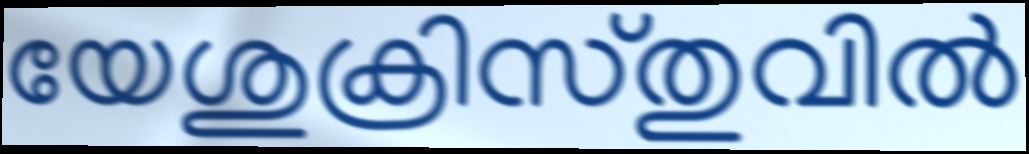
യേശുക്രിസ്തുവിൽ